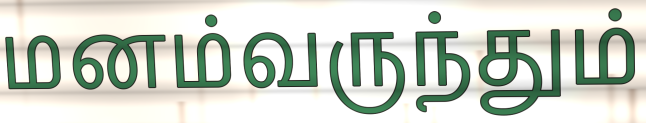
மனம்வருந்தும்